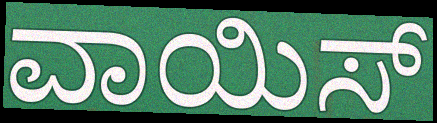
ವಾಯಿಸ್